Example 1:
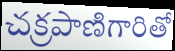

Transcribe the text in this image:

చక్రపాణిగారితో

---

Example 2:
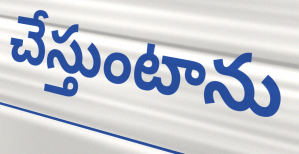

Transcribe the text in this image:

చేస్తుంటాను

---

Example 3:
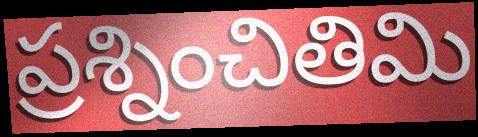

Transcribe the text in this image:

ప్రశ్నించితిమి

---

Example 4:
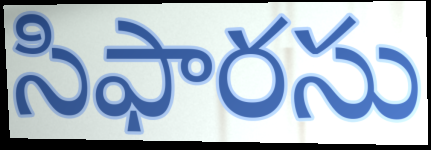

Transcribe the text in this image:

సిఫారసు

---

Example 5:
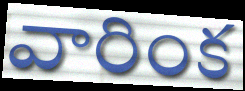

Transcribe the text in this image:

వారింక